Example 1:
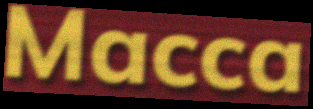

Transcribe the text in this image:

Macca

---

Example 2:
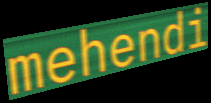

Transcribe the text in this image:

mehendi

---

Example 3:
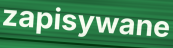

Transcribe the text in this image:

zapisywane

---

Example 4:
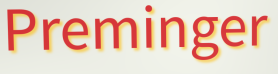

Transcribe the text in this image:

Preminger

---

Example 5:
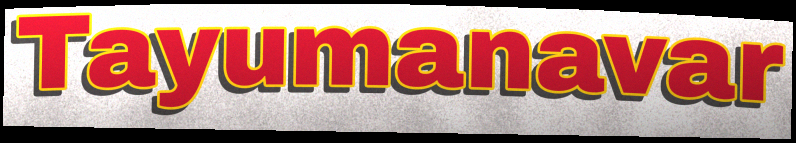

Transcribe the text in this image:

Tayumanavar